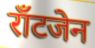
राँटजेन